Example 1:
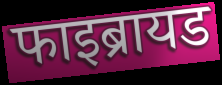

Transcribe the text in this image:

फाइब्रायड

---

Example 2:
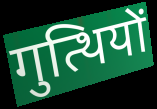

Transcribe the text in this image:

गुत्थियों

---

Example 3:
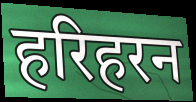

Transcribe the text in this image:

हरिहरन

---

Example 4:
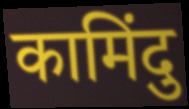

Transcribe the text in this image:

कामिंदु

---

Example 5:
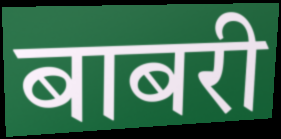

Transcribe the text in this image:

बाबरी